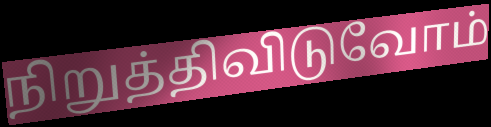
நிறுத்திவிடுவோம்